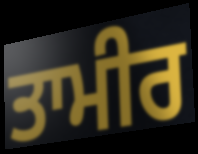
ਤਾਮੀਰ